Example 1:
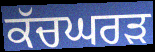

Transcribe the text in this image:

ਕੱਚਘਰੜ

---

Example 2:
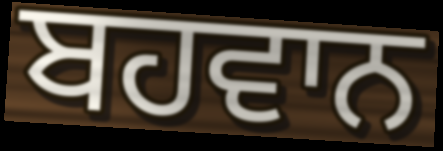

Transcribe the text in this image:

ਬਹਵਾਨ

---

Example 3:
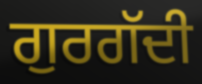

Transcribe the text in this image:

ਗੁਰਗੱਦੀ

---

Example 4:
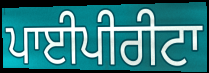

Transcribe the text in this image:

ਪਾਈਪੀਰੀਟਾ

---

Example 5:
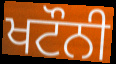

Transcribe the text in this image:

ਖਟੌਨੀ